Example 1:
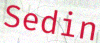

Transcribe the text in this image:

Sedin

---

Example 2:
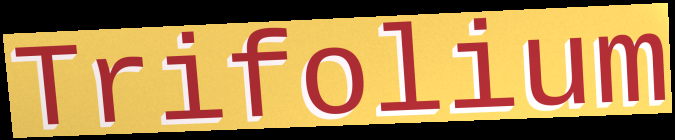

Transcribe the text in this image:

Trifolium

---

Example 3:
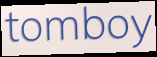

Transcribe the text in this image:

tomboy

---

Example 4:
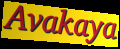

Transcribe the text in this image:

Avakaya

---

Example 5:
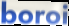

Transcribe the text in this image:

boroi